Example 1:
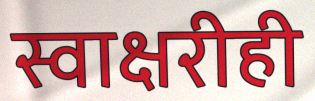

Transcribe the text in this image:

स्वाक्षरीही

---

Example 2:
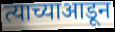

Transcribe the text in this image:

त्याच्याआडून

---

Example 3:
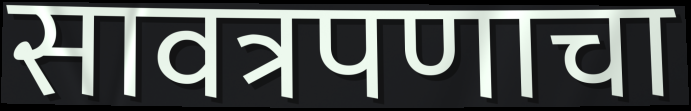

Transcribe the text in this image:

सावत्रपणाचा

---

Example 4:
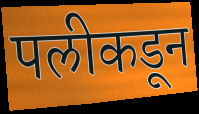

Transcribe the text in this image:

पलीकडून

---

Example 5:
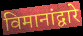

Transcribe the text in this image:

विमानांद्वारे